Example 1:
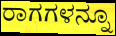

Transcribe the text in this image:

ರಾಗಗಳನ್ನೂ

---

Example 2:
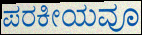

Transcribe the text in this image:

ಪರಕೀಯವೂ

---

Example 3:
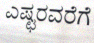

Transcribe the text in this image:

ಎಷ್ಟರವರೆಗೆ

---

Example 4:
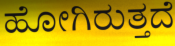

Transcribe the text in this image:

ಹೋಗಿರುತ್ತದೆ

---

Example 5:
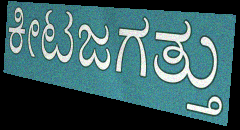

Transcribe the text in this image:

ಕೀಟಜಗತ್ತು